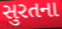
સુરતના